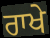
ਰਾਖੇ